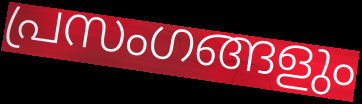
പ്രസംഗങ്ങളും